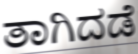
ತಾಗಿದಡೆ